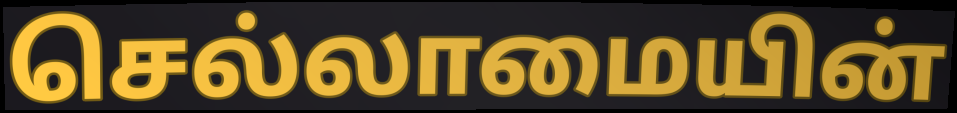
செல்லாமையின்